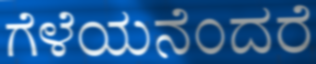
ಗೆಳೆಯನೆಂದರೆ